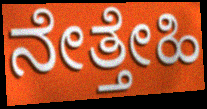
ನೇತ್ತೇಹಿ